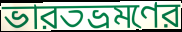
ভারতভ্রমণের